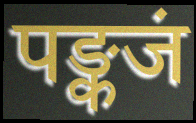
पङ्कजं